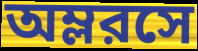
অম্লরসে